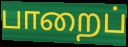
பாறைப்